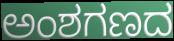
ಅಂಶಗಣದ